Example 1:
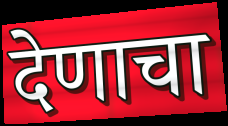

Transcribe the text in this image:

देणाचा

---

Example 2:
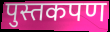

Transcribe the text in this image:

पुस्तकपण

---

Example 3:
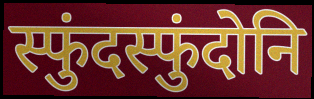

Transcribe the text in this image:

स्फुंदस्फुंदोनि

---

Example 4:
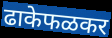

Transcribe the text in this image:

ढाकेफळकर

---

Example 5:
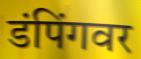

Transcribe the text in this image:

डंपिंगवर